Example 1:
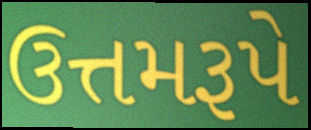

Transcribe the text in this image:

ઉત્તમરૂપે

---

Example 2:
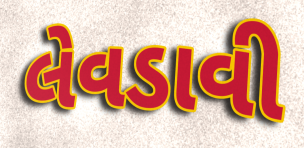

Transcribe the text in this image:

લેવડાવી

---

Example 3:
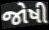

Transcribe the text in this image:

જોષી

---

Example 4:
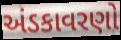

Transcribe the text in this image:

અંડકાવરણો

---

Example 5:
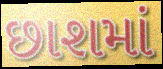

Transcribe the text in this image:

છાશમાં